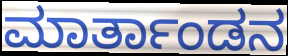
ಮಾರ್ತಾಂಡನ